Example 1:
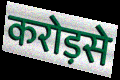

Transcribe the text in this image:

करोड़से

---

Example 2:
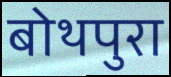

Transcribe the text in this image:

बोथपुरा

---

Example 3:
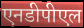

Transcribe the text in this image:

एनडीपीएल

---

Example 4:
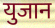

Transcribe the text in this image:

युजान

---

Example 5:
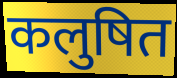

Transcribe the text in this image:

कलुषित